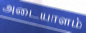
அடையாளம்